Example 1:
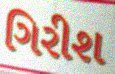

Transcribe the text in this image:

ગિરીશ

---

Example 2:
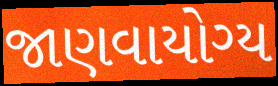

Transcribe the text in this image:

જાણવાયોગ્ય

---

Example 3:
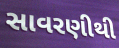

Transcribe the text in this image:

સાવરણીથી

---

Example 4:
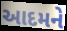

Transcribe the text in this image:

આદમને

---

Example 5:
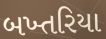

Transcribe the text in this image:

બખ્તરિયા